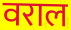
वराल